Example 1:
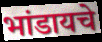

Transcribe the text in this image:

भांडायचे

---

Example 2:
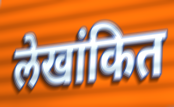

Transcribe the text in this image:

लेखांकित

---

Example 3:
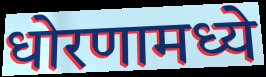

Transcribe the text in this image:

धोरणामध्ये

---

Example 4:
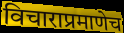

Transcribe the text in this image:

विचाराप्रमाणेच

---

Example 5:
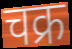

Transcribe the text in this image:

चक्र